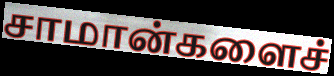
சாமான்களைச்